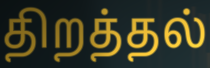
திறத்தல்